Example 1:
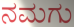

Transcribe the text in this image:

ನಮಗು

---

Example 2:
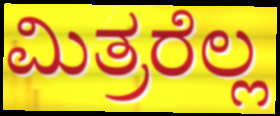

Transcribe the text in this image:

ಮಿತ್ರರೆಲ್ಲ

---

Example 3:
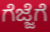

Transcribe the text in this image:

ಗೆಜ್ಜೆಗೆ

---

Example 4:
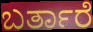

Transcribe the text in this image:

ಬರ್ತಾರೆ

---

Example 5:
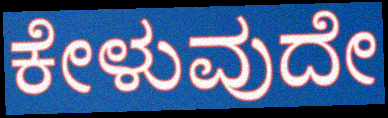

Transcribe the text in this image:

ಕೇಳುವುದೇ